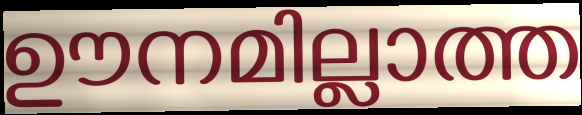
ഊനമില്ലാത്ത